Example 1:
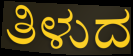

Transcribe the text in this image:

ತಿಳುದ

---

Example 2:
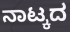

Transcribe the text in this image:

ನಾಟ್ಕದ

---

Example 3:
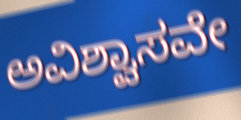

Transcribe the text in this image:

ಅವಿಶ್ವಾಸವೇ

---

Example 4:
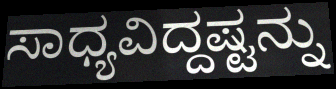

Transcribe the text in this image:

ಸಾಧ್ಯವಿದ್ದಷ್ಟನ್ನು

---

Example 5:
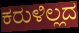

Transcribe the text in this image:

ಕರುಳಿಲ್ಲದ